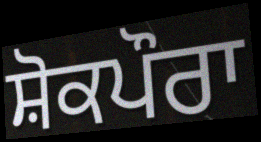
ਸ਼ੋਕਪੌਰਾ